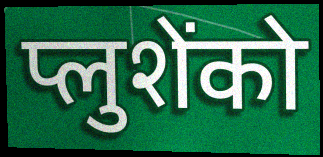
प्लुशेंको